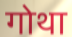
गोथा